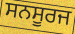
ਸਨਸੂਰਜ